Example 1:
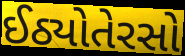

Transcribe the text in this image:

ઈઠ્યોતેરસો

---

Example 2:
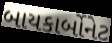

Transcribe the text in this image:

બાયકાર્બોનેટ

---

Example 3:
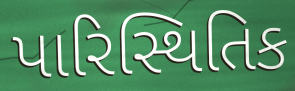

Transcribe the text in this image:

પારિસ્થિતિક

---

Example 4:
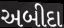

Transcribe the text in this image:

અબીદા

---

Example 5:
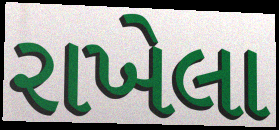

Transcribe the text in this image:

રાખેલા